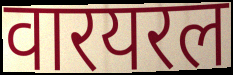
वारयरल